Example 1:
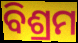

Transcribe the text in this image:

ବିଶ୍ରମ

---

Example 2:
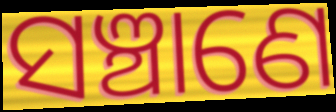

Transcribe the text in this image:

ସଞ୍ଚାଣେ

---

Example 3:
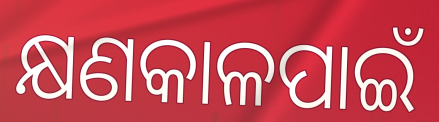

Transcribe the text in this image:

କ୍ଷଣକାଳପାଇଁ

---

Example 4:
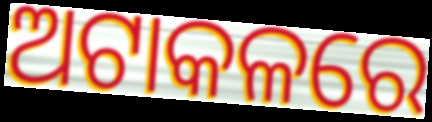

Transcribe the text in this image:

ଅଟାକଳରେ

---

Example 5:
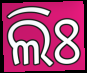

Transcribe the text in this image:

ଲିଃ